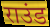
राउंड